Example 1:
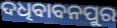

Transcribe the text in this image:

ଦଧିବାବନପୁର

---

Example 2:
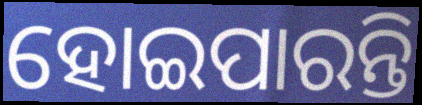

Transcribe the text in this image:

ହୋଇପାରନ୍ତି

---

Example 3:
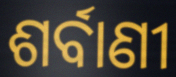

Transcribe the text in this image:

ଶର୍ବାଣୀ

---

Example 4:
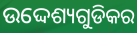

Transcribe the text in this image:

ଉଦ୍ଦେଶ୍ୟଗୁଡିକର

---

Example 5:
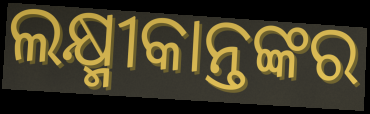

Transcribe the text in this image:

ଲକ୍ଷ୍ମୀକାନ୍ତଙ୍କର